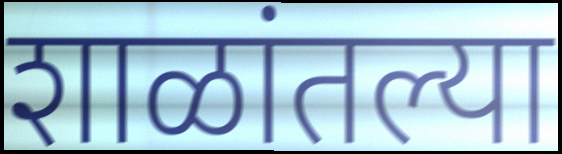
शाळांतल्या